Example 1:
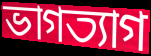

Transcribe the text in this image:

ভাগত্যাগ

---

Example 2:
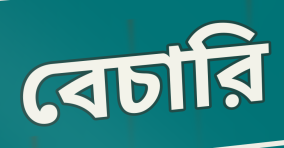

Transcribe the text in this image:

বেচারি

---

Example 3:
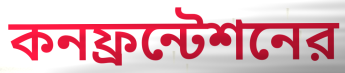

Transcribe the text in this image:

কনফ্রন্টেশনের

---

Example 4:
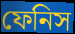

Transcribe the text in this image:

ফেনিস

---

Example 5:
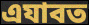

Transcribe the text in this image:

এযাবত